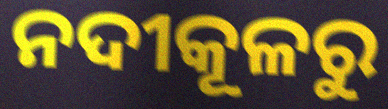
ନଦୀକୂଳରୁ